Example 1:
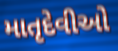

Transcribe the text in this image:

માતૃદેવીઓ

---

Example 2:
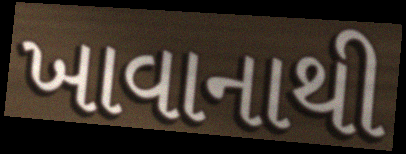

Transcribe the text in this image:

ખાવાનાથી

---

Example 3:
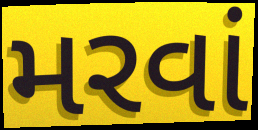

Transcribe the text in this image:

મરવાં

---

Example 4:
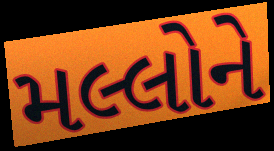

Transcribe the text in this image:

મલ્લોને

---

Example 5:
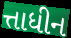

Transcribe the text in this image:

ત્તાધીન